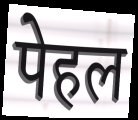
पेहल